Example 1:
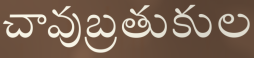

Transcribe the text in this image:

చావుబ్రతుకుల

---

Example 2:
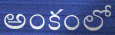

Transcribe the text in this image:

అంకంలో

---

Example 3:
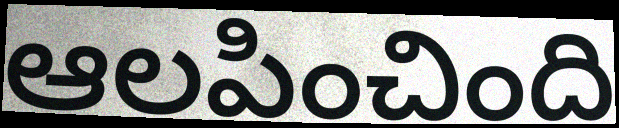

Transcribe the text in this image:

ఆలపించింది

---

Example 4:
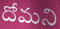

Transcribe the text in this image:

దోమని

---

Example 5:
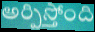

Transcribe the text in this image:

అర్పిస్తోంది